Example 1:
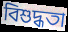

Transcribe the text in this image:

বিশুদ্ধতা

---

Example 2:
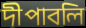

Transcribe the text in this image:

দীপাবলি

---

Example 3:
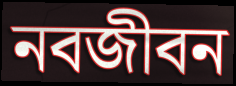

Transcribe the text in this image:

নবজীবন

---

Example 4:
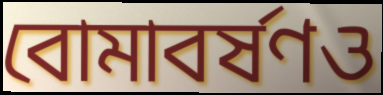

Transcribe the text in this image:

বোমাবর্ষণও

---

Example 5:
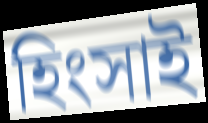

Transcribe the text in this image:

হিংসাই